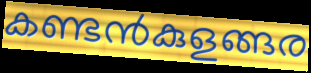
കണ്ടൻകുളങ്ങര